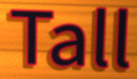
Tall